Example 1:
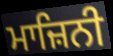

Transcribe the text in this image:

ਮਾਜ਼ਿਨੀ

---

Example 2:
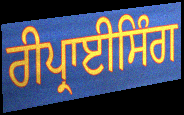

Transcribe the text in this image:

ਰੀਪ੍ਰਾਈਸਿੰਗ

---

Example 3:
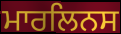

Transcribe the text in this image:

ਮਾਰਲਿਨਸ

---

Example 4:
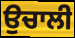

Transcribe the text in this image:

ਉਚਾਲੀ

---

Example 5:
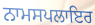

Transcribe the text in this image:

ਨਾਮਸਪਲਾਇਰ